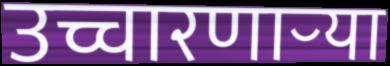
उच्चारणाऱ्या